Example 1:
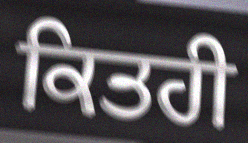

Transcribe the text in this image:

ਕਿਤਹੀ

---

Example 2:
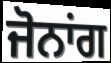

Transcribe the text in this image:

ਜੋਨਾਂਗ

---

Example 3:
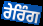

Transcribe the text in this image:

ਰੇਰਿੰਗ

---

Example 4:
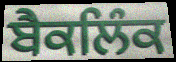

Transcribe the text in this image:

ਬੈਕਲਿੰਕ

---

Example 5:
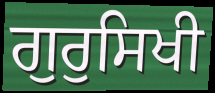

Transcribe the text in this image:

ਗੁਰੁਸਿਖੀ